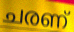
ചരണ്